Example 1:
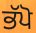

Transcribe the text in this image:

ਭੱਪੋ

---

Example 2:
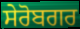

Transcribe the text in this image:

ਸੇਰੋਬਗਰ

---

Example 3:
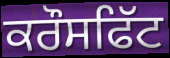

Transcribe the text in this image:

ਕਰੌਸਫਿੱਟ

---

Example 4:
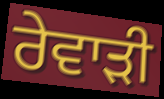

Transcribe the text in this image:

ਰੇਵਾਡ਼ੀ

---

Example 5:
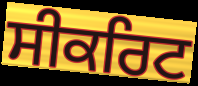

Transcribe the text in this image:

ਸੀਕਰਿਟ